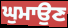
ਘੁਮਾਉਣ